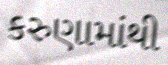
કરુણામાંથી